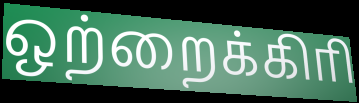
ஒற்றைக்கிரி